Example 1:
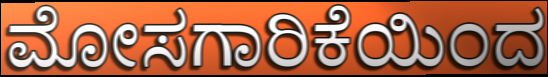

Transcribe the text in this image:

ಮೋಸಗಾರಿಕೆಯಿಂದ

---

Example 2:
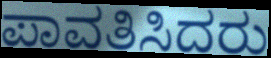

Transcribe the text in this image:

ಪಾವತಿಸಿದರು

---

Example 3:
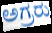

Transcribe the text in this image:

ಅಗ್ರರು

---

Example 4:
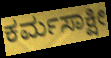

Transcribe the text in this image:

ಕರ್ಮಸಾಕ್ಷೀ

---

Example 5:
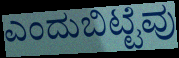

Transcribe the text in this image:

ಎಂದುಬಿಟ್ಟೆವು